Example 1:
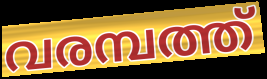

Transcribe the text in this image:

വരമ്പത്ത്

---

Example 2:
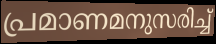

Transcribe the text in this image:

പ്രമാണമനുസരിച്ച്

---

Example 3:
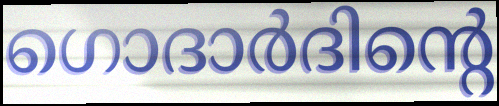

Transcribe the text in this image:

ഗൊദാർദിന്റെ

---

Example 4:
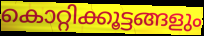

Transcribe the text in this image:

കൊറ്റിക്കൂട്ടങ്ങളും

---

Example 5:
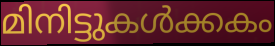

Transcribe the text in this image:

മിനിട്ടുകൾക്കകം